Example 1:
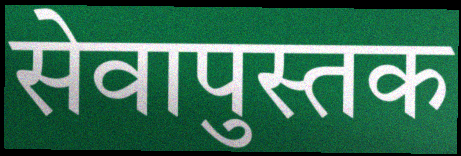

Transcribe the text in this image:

सेवापुस्तक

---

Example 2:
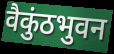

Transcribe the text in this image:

वैकुंठभुवन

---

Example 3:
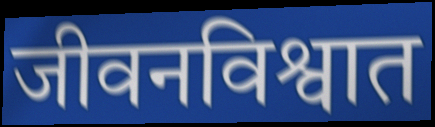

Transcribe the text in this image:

जीवनविश्वात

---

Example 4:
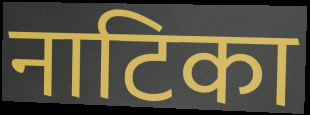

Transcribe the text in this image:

नाटिका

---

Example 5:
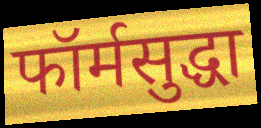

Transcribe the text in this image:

फॉर्मसुद्धा